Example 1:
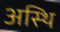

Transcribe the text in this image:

अस्थि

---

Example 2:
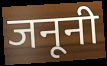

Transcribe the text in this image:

जनूनी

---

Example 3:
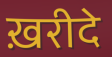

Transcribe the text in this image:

ख़रीदे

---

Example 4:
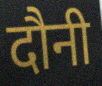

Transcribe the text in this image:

दौनी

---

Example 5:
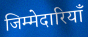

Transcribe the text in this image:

जिम्मेदारियॉं